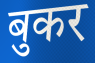
बुकर